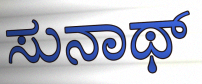
ಸುನಾಥ್